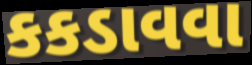
કકડાવવા